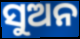
ସୁଅନ